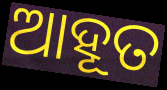
ଆହୂତ